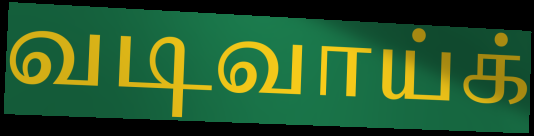
வடிவாய்க்